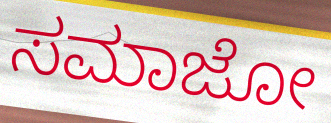
ಸಮಾಜೋ